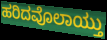
ಹರಿದವೊಲಾಯ್ತು